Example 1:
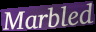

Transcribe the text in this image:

Marbled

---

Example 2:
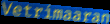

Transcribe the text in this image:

Vetrimaaran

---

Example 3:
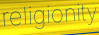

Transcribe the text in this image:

religionity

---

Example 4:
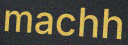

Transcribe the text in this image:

machh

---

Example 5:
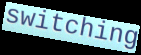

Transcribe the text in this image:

switching